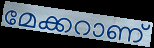
മേക്കറാണ്